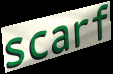
scarf